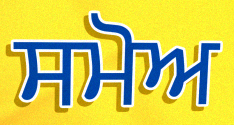
ਸਮੋਅ